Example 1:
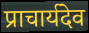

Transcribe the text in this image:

प्राचार्यदेव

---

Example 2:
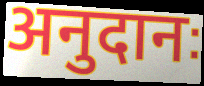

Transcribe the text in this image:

अनुदानः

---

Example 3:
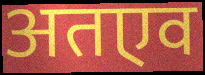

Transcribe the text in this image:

अतएव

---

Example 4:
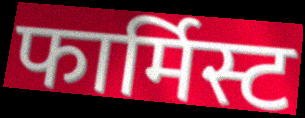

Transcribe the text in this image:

फार्मिस्ट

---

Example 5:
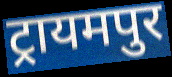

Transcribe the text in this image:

ट्रायमपुर